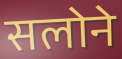
सलोने